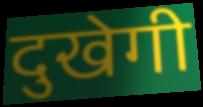
दुखेगी